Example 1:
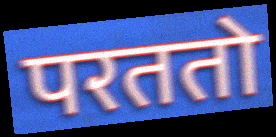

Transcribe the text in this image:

परततो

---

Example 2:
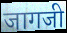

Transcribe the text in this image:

जागजी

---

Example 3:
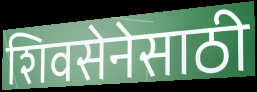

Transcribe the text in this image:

शिवसेनेसाठी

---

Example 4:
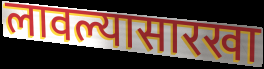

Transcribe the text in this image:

लावल्यासारखा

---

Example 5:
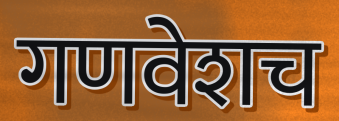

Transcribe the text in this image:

गणवेशच